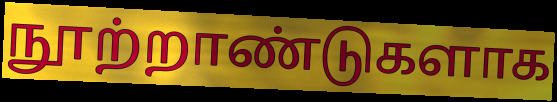
நூற்றாண்டுகளாக